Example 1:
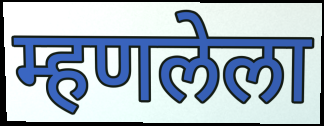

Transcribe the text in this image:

म्हणलेला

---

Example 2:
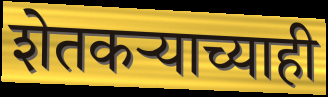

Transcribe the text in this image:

शेतकऱ्याच्याही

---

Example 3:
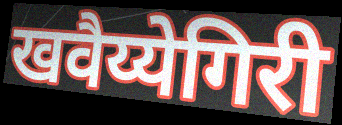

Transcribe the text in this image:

खवैय्येगिरी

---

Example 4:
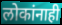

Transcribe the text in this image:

लोकांनाही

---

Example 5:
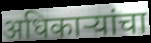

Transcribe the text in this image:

अधिकाऱ्यांचा